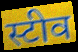
स्टीव